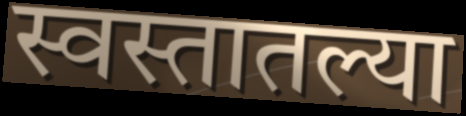
स्वस्तातल्या